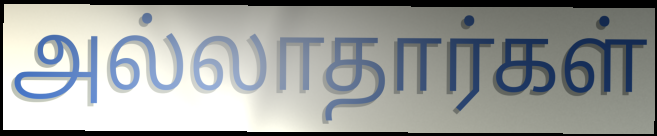
அல்லாதார்கள்